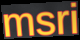
msri